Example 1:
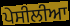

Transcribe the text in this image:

ਪੇਸੀਲੀਆ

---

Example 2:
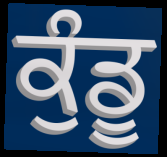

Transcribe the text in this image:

ਕੁੰਡੂ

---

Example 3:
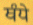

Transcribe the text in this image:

ਥੰਧੇ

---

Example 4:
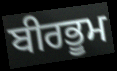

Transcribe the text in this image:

ਬੀਰਭੂਮ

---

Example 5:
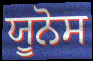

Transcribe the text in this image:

ਯੂਨੋਸ